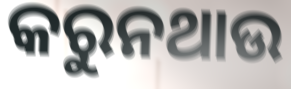
କରୁନଥାଉ